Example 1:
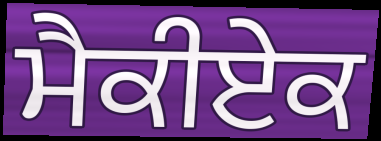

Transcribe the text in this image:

ਮੈਕੀਏਕ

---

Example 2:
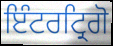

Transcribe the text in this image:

ਇੰਟਰਟ੍ਰਿਗੋ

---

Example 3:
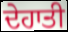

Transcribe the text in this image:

ਦੇਹਾਤੀ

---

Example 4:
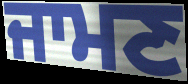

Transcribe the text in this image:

ਜਾਮਣ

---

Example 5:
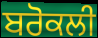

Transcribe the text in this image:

ਬਰੋਕਲੀ